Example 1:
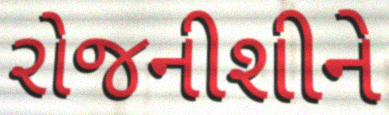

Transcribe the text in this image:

રોજનીશીને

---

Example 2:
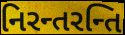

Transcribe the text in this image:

નિરન્તરન્તિ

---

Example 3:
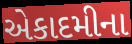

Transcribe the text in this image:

એકાદમીના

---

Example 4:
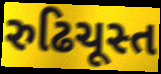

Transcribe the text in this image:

રુઢિચૂસ્ત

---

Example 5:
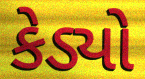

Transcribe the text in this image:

કેડ્યો